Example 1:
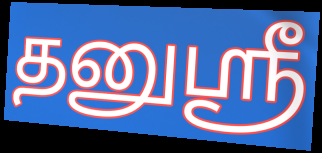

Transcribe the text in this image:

தனுஸ்ரீ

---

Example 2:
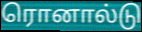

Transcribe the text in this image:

ரொனால்டு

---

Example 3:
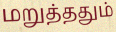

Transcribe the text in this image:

மறுத்ததும்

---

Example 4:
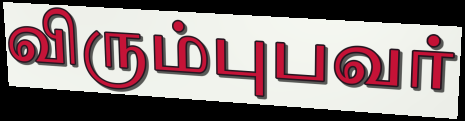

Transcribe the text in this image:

விரும்புபவர்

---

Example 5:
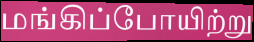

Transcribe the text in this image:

மங்கிப்போயிற்று